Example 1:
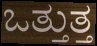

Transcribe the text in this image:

ಒತ್ತುತ್ತ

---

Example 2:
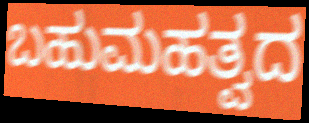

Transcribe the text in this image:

ಬಹುಮಹತ್ವದ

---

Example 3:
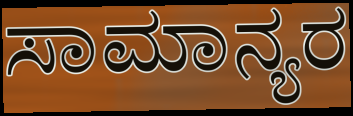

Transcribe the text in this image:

ಸಾಮಾನ್ಯರ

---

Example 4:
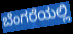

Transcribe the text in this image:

ಬೆಂಗರೆಯಲ್ಲಿ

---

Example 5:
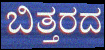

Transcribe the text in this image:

ಬಿತ್ತರದ